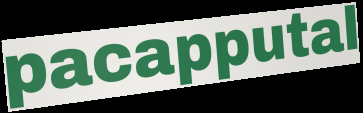
pacapputal